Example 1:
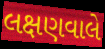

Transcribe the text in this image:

લક્ષણવાલે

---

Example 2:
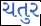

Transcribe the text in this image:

ચતુર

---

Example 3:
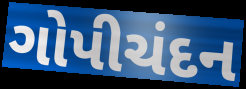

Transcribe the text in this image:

ગોપીચંદન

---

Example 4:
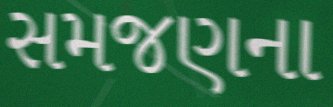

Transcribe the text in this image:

સમજણના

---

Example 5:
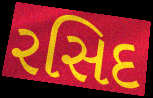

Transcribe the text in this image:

રસિદ